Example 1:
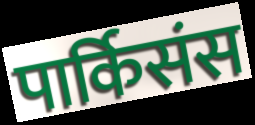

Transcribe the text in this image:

पार्किसंस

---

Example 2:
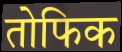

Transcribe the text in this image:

तोफिक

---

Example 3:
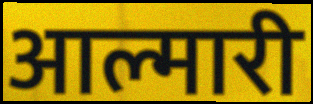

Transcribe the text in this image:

आल्मारी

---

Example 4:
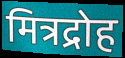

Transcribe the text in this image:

मित्रद्रोह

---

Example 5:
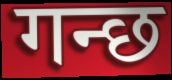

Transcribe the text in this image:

गन्छ